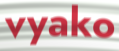
vyako